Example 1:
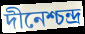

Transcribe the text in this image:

দীনেশ্চন্দ্র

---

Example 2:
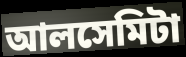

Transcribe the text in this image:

আলসেমিটা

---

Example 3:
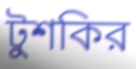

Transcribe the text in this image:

টুশকির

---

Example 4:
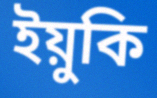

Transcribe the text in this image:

ইয়ুকি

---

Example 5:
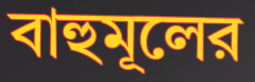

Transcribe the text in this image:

বাহুমূলের